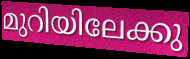
മുറിയിലേക്കു